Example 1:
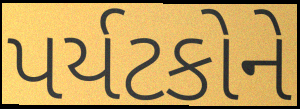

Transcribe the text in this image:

પર્યટકોને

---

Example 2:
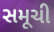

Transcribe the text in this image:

સમૂચી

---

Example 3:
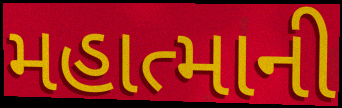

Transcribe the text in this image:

મહાત્માની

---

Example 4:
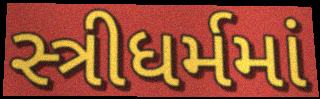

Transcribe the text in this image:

સ્ત્રીધર્મમાં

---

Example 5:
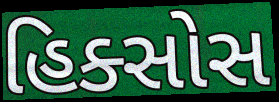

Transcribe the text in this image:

હિક્સોસ